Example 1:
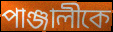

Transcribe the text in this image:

পাঞ্জালীকে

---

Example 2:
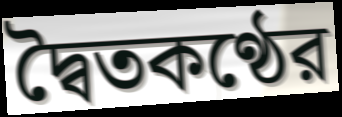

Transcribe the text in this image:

দ্বৈতকণ্ঠের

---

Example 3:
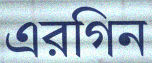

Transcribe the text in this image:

এরগিন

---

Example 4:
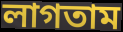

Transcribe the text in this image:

লাগতাম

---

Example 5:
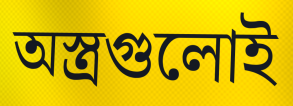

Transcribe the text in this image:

অস্ত্রগুলোই